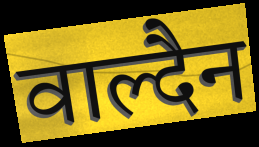
वाल्दैन